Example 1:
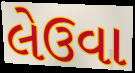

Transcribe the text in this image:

લેઉવા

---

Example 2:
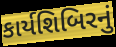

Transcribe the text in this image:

કાર્યશિબિરનું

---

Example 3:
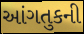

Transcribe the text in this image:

આંગતુકની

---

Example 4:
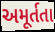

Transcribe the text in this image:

અમૂર્તતા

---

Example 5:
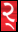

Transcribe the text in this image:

ર્